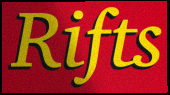
Rifts